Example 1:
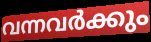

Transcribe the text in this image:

വന്നവർക്കും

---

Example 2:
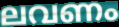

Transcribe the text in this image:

ലവണം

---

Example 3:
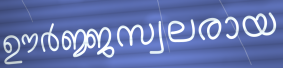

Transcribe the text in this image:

ഊർജ്ജസ്വലരായ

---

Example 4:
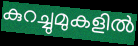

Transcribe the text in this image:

കുറച്ചുമുകളിൽ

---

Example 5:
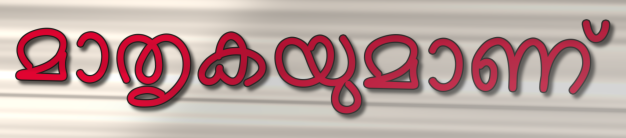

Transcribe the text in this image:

മാതൃകയുമാണ്